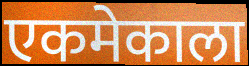
एकमेकाला